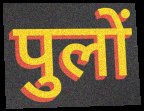
पुलों